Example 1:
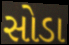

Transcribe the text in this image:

સોડા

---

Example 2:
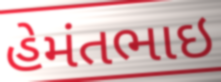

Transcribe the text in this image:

હેમંતભાઇ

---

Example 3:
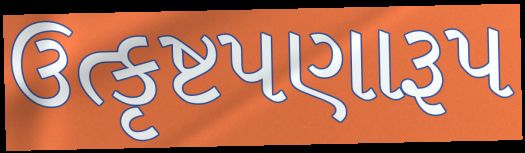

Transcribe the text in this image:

ઉત્કૃષ્ટપણારૂપ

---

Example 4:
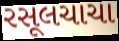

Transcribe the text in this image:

રસૂલચાચા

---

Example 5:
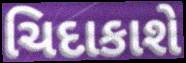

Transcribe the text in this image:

ચિદાકાશે